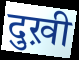
दुख़ी